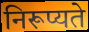
निरूप्यते